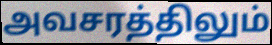
அவசரத்திலும்